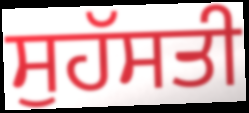
ਸੁਹੱਸਤੀ